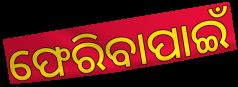
ଫେରିବାପାଇଁ